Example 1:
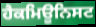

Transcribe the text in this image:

ਹੈਕਮਿਊਨਿਸਟ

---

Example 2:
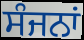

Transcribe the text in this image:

ਸੰਜਨਾਂ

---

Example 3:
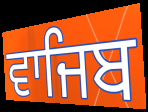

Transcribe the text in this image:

ਵਾਜਿਬ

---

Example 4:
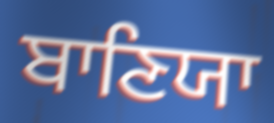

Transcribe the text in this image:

ਬਾਣਿਯਾ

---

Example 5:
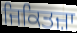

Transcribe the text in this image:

ਜਿਕਿਤਜ਼ਾ